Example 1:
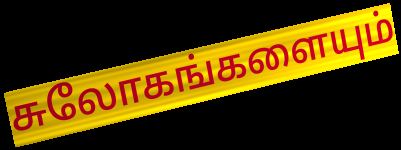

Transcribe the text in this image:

சுலோகங்களையும்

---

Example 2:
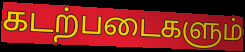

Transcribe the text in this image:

கடற்படைகளும்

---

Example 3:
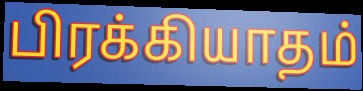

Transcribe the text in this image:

பிரக்கியாதம்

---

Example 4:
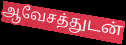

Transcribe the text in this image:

ஆவேசத்துடன்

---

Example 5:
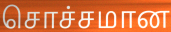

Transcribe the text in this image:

சொச்சமான